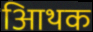
आिथक